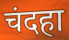
चंदहा